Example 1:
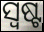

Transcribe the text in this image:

ସ୍ୱଷ୍ଟ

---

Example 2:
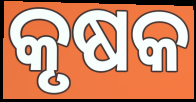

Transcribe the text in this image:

କୃଷକ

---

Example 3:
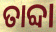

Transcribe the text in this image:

ତାବ୍ଦା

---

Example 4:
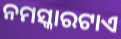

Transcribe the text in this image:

ନମସ୍କାରଟାଏ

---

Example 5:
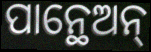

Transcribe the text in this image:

ପାନ୍ଥେଅନ୍